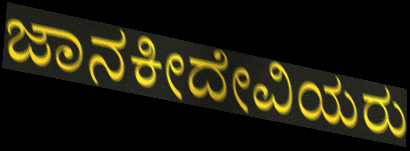
ಜಾನಕೀದೇವಿಯರು